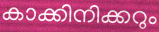
കാക്കിനിക്കറും